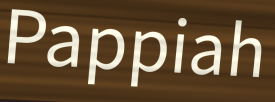
Pappiah